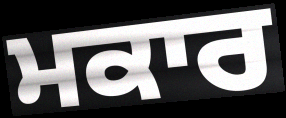
ਮਕਾਰ